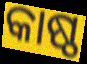
କାଷ୍ଠ